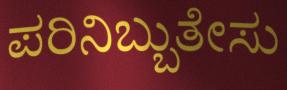
ಪರಿನಿಬ್ಬುತೇಸು